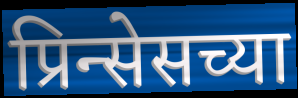
प्रिन्सेसच्या